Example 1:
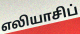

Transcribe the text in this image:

எலியாசிப்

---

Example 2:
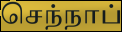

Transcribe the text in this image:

செந்நாப்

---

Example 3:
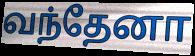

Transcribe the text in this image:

வந்தேனா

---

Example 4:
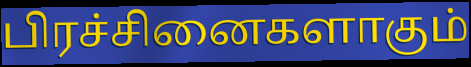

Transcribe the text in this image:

பிரச்சினைகளாகும்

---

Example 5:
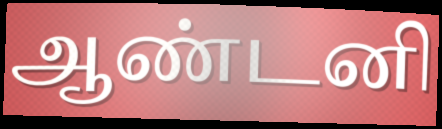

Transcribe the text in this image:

ஆண்டனி